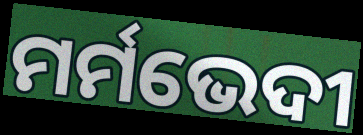
ମର୍ମଭେଦୀ